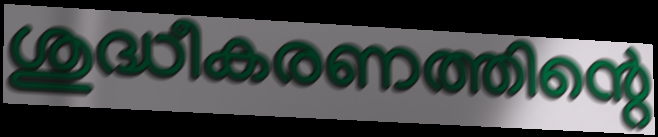
ശുദ്ധീകരണത്തിന്റെ